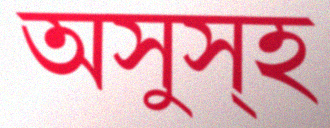
অসুস্হ